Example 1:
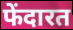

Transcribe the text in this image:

फेंदारत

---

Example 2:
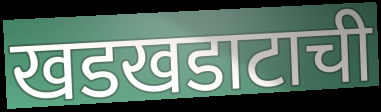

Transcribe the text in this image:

खडखडाटाची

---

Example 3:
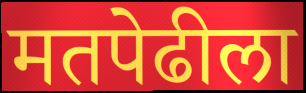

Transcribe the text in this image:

मतपेढीला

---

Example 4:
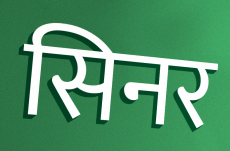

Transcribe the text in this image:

सिनर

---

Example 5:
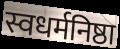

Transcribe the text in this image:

स्वधर्मनिष्ठा